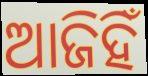
ଆଜିହିଁ